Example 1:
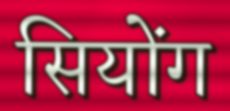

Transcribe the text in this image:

सियोंग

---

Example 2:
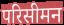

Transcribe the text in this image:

परिसीमन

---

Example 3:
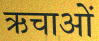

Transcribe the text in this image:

ऋचाओं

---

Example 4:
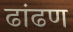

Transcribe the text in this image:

ढांढण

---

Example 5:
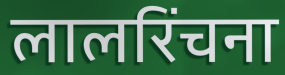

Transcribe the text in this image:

लालरिंचना